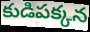
కుడిపక్కన